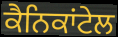
ਕੈਨਿਕਾਂਟੇਲ